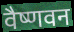
वैष्णवन